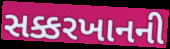
સક્કરખાનની